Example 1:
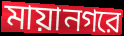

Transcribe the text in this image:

মায়ানগরে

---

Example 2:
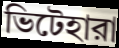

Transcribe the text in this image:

ভিটেহারা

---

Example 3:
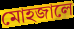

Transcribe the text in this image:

মোহজালে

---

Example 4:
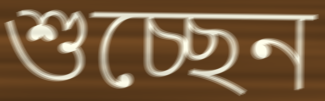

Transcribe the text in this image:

শুচ্ছেন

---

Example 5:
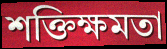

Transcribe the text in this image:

শক্তিক্ষমতা